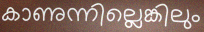
കാണുന്നില്ലെങ്കിലും